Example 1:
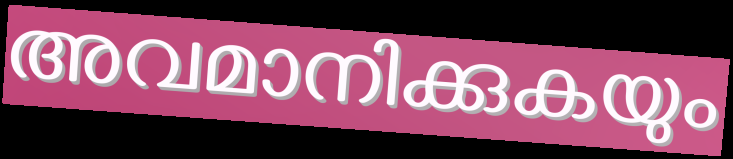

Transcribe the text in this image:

അവമാനിക്കുകയും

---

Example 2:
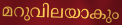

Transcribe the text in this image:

മറുവിലയാകും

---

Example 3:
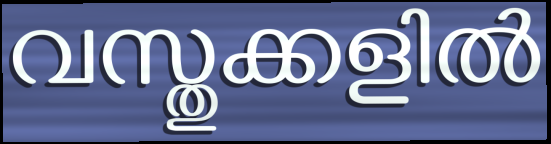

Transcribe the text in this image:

വസ്തുക്കളിൽ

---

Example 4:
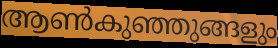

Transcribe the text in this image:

ആൺകുഞ്ഞുങ്ങളും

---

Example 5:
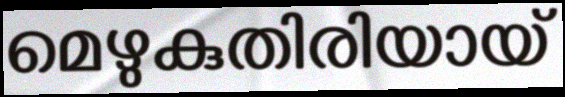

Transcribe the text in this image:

മെഴുകുതിരിയായ്